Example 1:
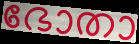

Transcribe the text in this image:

ഭോതാ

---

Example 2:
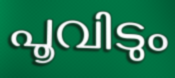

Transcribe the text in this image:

പൂവിടും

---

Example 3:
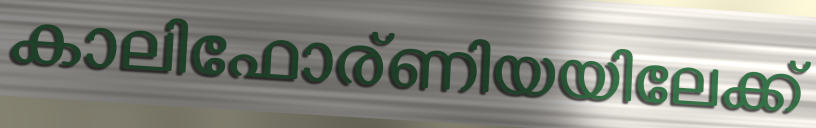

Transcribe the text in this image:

കാലിഫോര്ണിയയിലേക്ക്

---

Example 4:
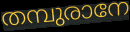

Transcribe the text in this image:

തമ്പുരാനേ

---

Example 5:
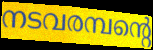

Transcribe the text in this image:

നടവരമ്പന്റെ